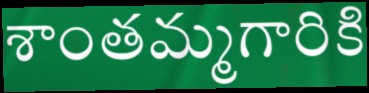
శాంతమ్మగారికి